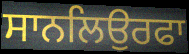
ਸਾਨਲਿਉਰਫਾ